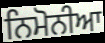
ਨਿਮੋਨੀਆ